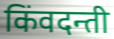
किंवदन्ती